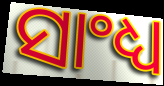
ସାଂଧ୍ୟ